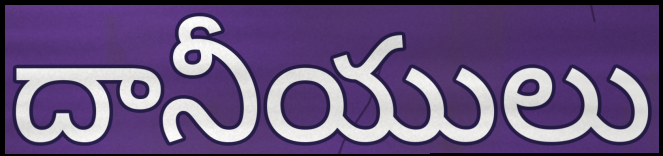
దానీయులు